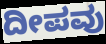
ದೀಪವು